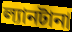
ল্যানটানা